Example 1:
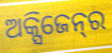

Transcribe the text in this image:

ଅକ୍ସିଜେନ୍‌ର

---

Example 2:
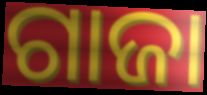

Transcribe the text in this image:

ଗାଜା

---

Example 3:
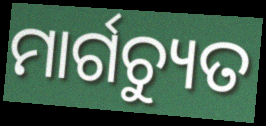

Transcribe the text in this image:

ମାର୍ଗଚ୍ୟୁତ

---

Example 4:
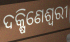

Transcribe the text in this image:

ଦକ୍ଷିଣେଶ୍ଵରୀ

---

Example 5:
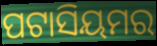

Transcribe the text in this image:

ପଟାସିୟମର